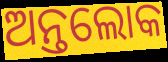
ଅନ୍ତଲୋକ